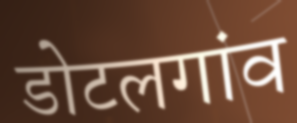
डोटलगांव